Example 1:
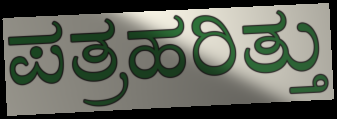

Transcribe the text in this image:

ಪತ್ರಹರಿತ್ತು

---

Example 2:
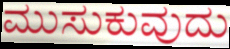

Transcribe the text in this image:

ಮುಸುಕುವುದು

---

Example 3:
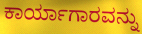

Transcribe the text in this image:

ಕಾರ್ಯಾಗಾರವನ್ನು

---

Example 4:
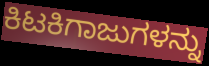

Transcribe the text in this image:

ಕಿಟಕಿಗಾಜುಗಳನ್ನು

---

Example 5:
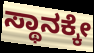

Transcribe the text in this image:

ಸ್ಥಾನಕ್ಕೇ